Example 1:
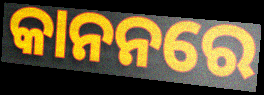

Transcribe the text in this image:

କାନନରେ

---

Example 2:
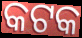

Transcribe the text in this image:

କଟକ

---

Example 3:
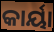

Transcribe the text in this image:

କାର୍ୟା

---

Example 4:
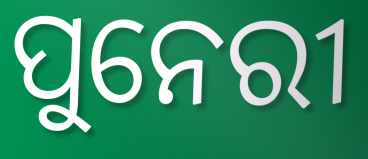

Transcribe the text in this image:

ପୁନେରୀ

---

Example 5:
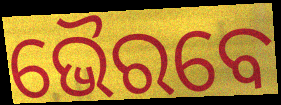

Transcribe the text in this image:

ଭୈରବେ